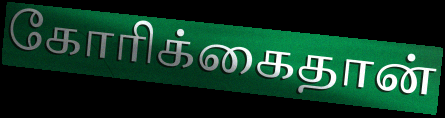
கோரிக்கைதான்